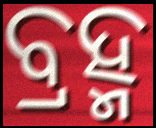
ବ୍ରହ୍ମ